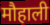
मौहाली